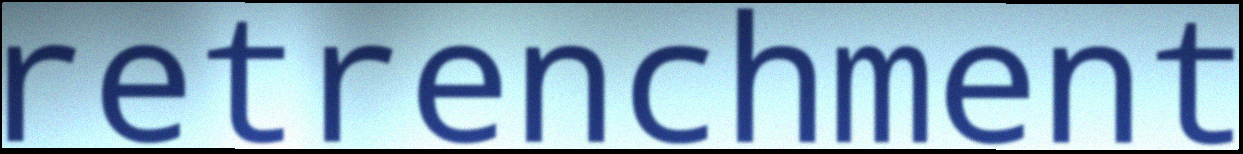
retrenchment